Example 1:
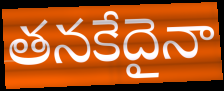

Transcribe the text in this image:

తనకేదైనా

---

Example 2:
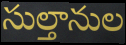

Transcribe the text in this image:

సుల్తానుల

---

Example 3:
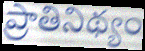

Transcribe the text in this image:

ప్రాతినిథ్యం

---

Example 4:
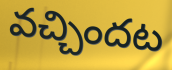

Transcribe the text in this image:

వచ్చిందట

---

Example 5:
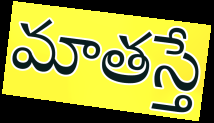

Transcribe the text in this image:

మాతస్తే